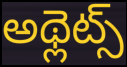
అథ్లెట్స్